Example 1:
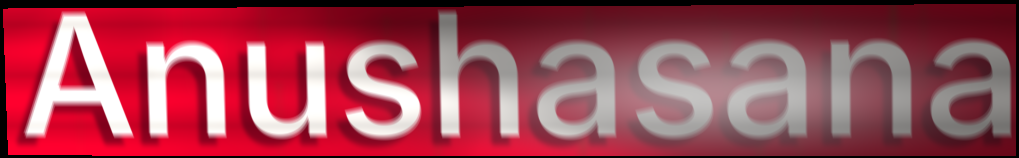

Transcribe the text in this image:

Anushasana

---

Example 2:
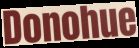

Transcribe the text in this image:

Donohue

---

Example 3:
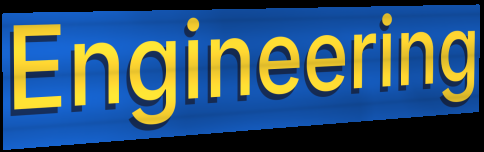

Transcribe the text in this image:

Engineering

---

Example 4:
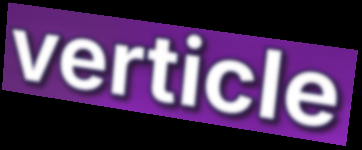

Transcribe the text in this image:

verticle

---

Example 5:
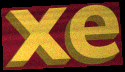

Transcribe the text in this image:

xe